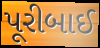
પૂરીબાઈ